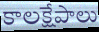
కాలక్షేపాలు